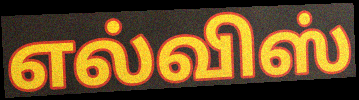
எல்விஸ்